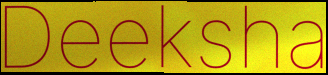
Deeksha